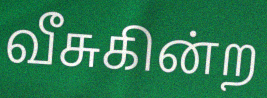
வீசுகின்ற